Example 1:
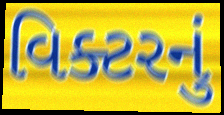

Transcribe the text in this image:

વિક્ટરનું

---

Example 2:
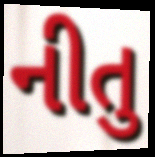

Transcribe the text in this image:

નીતુ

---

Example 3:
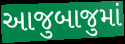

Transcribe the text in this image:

આજુબાજુમાં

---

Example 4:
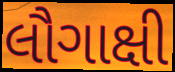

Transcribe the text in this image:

લૌગાક્ષી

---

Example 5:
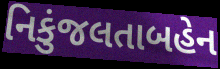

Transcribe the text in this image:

નિકુંજલતાબહેન